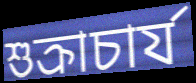
শুক্রাচার্য